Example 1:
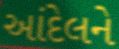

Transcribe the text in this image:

આંદેલને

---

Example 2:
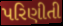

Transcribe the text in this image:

પરિણીતી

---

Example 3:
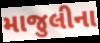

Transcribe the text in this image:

માજુલીના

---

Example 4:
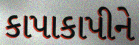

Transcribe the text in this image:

કાપાકાપીને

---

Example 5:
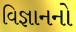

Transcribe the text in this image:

વિજ્ઞાનનો